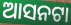
ଆସନଟା